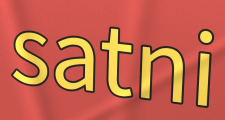
satni